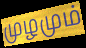
முழமும்